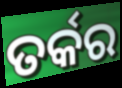
ତର୍କର